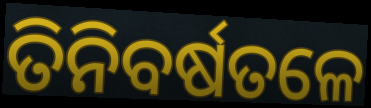
ତିନିବର୍ଷତଳେ